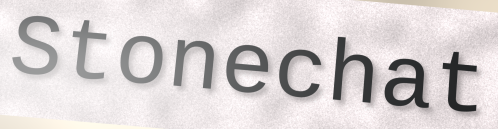
Stonechat